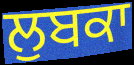
ਲੁਬਕਾ